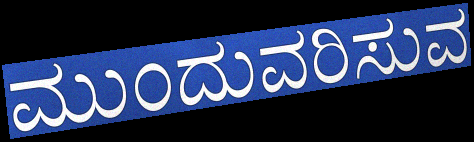
ಮುಂದುವರಿಸುವ